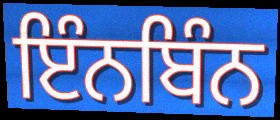
ਇੰਨਬਿੰਨ